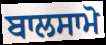
ਬਾਲਸਾਮੋ